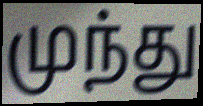
முந்து